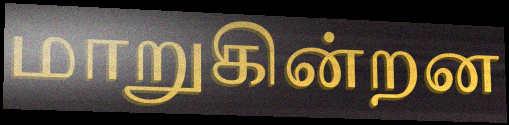
மாறுகின்றன